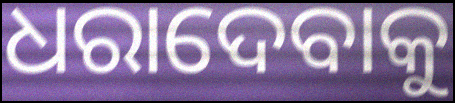
ଧରାଦେବାକୁ